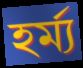
হর্ম্য